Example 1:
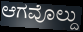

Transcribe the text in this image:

ಆಗವೊಲ್ದು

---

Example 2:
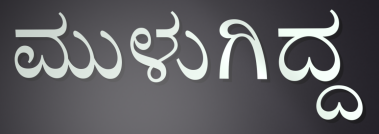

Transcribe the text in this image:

ಮುಳುಗಿದ್ದ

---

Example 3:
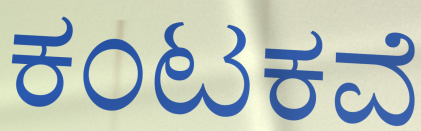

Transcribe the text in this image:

ಕಂಟಕವೆ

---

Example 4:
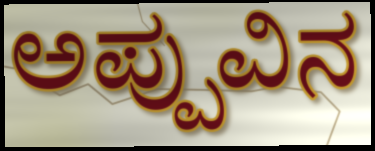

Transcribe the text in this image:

ಅಪ್ಪುವಿನ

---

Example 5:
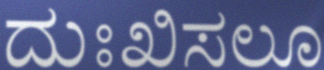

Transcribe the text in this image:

ದುಃಖಿಸಲೂ